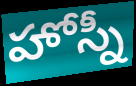
హోస్నీ